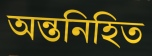
অন্তনিহিত